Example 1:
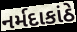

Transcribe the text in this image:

નર્મદાકાંઠે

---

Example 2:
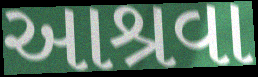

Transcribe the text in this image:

આશ્રવા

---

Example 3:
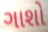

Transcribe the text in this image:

ગાશો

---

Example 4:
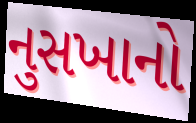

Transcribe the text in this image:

નુસખાનો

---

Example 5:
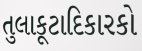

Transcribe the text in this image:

તુલાકૂટાદિકારકો